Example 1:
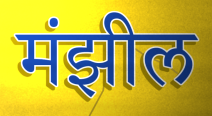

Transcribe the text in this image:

मंझील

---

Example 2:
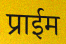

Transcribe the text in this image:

प्राईम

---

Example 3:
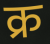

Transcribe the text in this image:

क्र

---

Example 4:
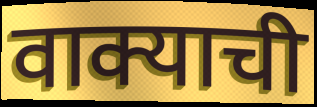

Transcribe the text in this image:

वाक्याची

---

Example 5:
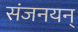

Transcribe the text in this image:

संजनयन्